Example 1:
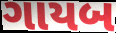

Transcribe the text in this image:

ગાયબ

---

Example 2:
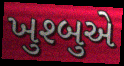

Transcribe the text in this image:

ખુશ્બુએ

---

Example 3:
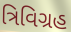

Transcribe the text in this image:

ત્રિવિગ્રહ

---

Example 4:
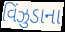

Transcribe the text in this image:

વિંઝુડાના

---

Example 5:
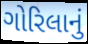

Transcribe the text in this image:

ગોરિલાનું